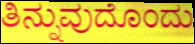
ತಿನ್ನುವುದೊಂದು